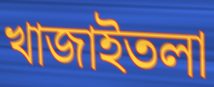
খাজাইতলা